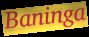
Baninga